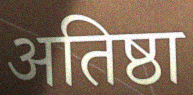
अतिष्ठा